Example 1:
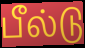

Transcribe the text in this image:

பீல்டு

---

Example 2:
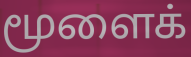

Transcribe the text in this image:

மூளைக்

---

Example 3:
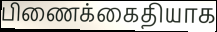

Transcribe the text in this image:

பிணைக்கைதியாக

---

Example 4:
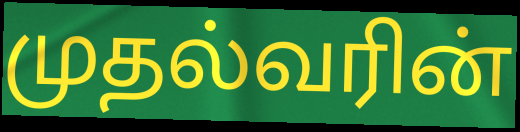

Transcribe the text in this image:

முதல்வரின்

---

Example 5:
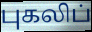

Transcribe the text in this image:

புகலிப்